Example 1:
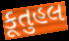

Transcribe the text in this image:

કૂતુહલ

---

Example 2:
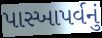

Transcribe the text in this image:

પાસ્ખાપર્વનું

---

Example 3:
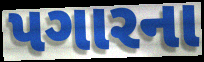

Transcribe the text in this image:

પગારના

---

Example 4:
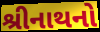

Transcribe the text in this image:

શ્રીનાથનો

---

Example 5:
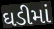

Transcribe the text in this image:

ઘડીમાં